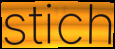
stich